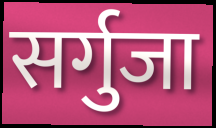
सर्गुजा